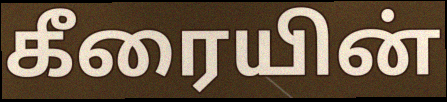
கீரையின்